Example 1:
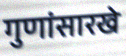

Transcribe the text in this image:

गुणांसारखे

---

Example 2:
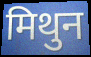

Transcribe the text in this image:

मिथुन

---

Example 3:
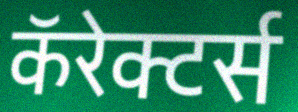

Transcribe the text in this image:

कॅरेक्टर्स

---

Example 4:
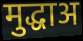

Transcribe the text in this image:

मुद्धाअ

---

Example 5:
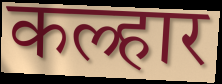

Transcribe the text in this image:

कल्हार